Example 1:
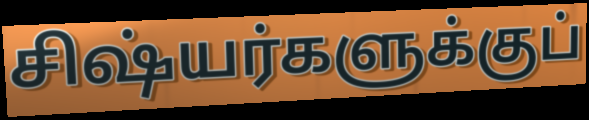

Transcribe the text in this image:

சிஷ்யர்களுக்குப்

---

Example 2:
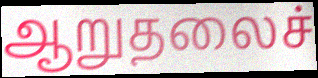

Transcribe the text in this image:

ஆறுதலைச்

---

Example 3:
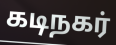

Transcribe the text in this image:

கடிநகர்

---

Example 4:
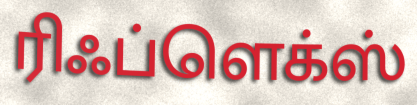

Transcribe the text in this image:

ரிஃப்ளெக்ஸ்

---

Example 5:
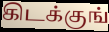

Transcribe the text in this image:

கிடக்குங்